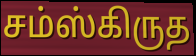
சம்ஸ்கிருத